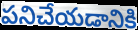
పనిచేయడానికి